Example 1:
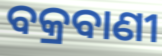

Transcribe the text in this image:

ବକ୍ରବାଣୀ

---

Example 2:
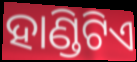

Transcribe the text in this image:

ହାଣ୍ଡିଟିଏ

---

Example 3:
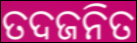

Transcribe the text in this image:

ତଦଜନିତ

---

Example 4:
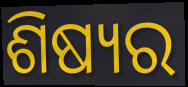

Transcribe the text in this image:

ଶିଷ୍ୟର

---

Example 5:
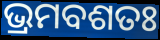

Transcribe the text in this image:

ଭ୍ରମବଶତଃ